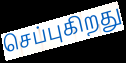
செப்புகிறது